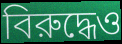
বিরুদ্ধেও